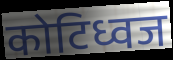
कोटिध्वज